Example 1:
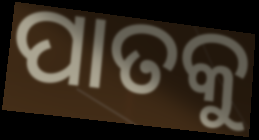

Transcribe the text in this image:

ପାତକୁ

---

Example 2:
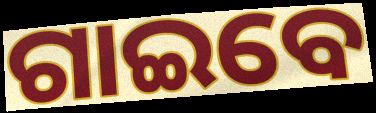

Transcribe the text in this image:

ଗାଇବେ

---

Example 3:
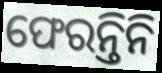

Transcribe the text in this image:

ଫେରନ୍ତିନି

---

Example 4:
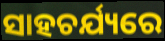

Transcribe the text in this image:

ସାହଚର୍ଯ୍ୟରେ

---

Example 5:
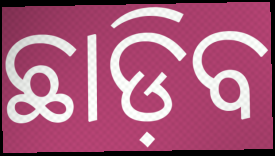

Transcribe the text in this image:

ଛାଡ଼ିବ